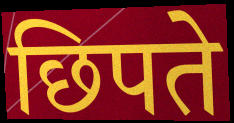
छिपते